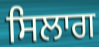
ਸਿਲਾਗ